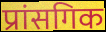
प्रांसगिक